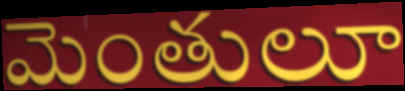
మెంతులూ